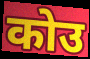
कोउ